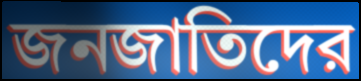
জনজাতিদের